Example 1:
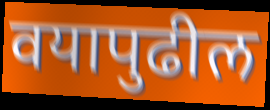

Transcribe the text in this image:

वयापुढील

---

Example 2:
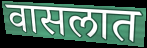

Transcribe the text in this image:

वासलात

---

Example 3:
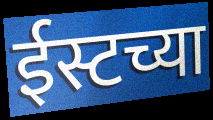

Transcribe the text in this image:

ईस्टच्या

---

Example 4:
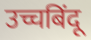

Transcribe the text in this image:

उच्चबिंदू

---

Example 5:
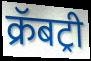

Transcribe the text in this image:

क्रॅबट्री